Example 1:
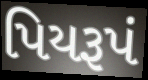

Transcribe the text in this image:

પિયરૂપં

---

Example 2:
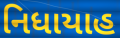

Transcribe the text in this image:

નિધાયાહ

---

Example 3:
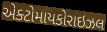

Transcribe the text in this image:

એક્ટોમાયકોરાઇઝલ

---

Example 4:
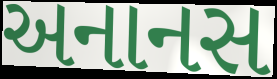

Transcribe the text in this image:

અનાનસ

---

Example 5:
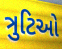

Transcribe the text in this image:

ત્રુટિઓ